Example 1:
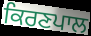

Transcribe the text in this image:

ਕਿਰਣਪਾਲ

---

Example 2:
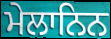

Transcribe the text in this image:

ਮੇਲਾਨਿਨ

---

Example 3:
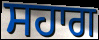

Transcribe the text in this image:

ਸਹਾਗ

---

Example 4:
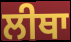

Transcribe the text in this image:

ਲੀਥਾ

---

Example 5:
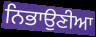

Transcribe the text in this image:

ਨਿਭਾਉਣੀਆ